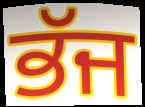
ਭੱਜ